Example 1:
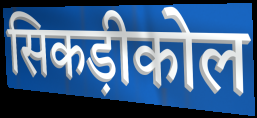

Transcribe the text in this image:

सिकड़ीकोल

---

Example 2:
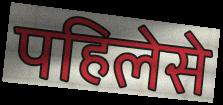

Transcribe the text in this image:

पहिलेसे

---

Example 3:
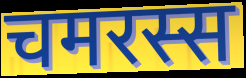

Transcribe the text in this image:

चमरस्स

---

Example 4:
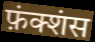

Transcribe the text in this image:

फ़ंक्शंस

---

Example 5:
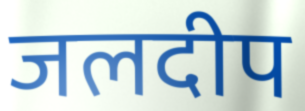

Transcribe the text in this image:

जलदीप